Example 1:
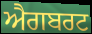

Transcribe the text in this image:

ਐਗਬਰਟ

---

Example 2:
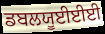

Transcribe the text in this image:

ਡਬਲਯੂਈਈਈ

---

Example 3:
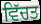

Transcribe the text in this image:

ਵਿੱਚਤ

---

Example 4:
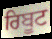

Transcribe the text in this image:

ਰਿਬੂਟ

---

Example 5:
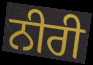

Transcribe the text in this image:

ਨੀਰੀ